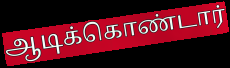
ஆடிக்கொண்டார்